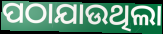
ପଠାଯାଉଥିଲା